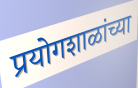
प्रयोगशाळांच्या